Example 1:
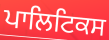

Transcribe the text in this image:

ਪਾਲਿਟਿਕਸ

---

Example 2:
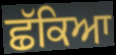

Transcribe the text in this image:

ਛੱਕਿਆ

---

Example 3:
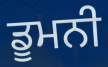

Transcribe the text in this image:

ਡੂਮਨੀ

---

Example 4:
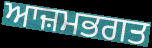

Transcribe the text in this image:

ਆਜ਼ਮਭਗਤ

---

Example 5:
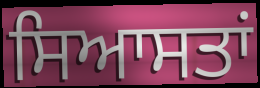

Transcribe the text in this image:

ਸਿਆਸਤਾਂ